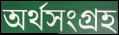
অর্থসংগ্রহ